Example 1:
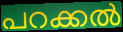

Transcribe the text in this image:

പറക്കൽ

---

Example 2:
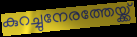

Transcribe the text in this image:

കുറച്ചുനേരത്തേയ്ക്ക്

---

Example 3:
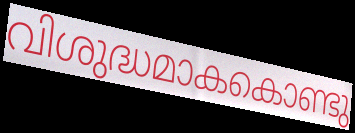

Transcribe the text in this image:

വിശുദ്ധമാകകൊണ്ടു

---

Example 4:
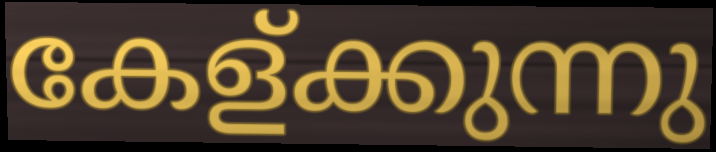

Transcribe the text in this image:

കേള്ക്കുന്നു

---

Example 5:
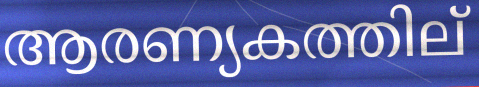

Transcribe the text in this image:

ആരണ്യകത്തില്